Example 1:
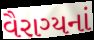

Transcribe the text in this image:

વૈરાગ્યનાં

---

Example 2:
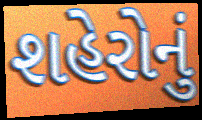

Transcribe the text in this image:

શહેરોનું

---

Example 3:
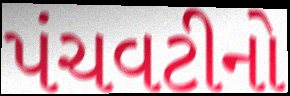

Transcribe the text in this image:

પંચવટીનો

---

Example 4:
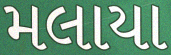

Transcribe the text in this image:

મલાયા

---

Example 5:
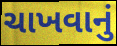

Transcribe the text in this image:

ચાખવાનું